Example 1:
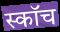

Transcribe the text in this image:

स्कॉच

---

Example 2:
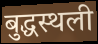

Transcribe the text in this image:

बुद्धस्थली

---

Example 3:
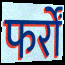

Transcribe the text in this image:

फर्रों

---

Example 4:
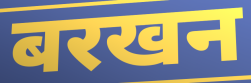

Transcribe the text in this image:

बरखन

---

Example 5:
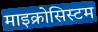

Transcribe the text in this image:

माइक्रोसिस्टम